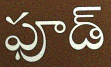
ఫూడ్